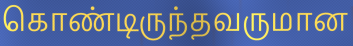
கொண்டிருந்தவருமான